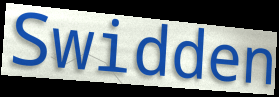
Swidden